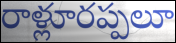
రాళ్లూరప్పలూ